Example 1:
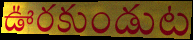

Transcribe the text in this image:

ఊరకుండుట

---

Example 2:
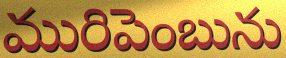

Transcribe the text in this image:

మురిపెంబును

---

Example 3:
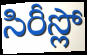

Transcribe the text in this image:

సిరీస్లో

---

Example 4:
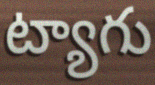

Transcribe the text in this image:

ట్యాగు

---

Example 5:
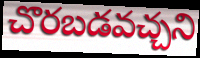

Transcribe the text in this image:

చొరబడవచ్చని